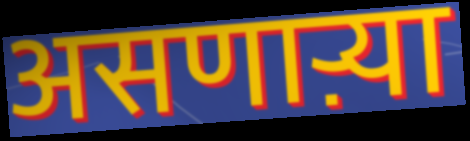
असणाऱ्‍या